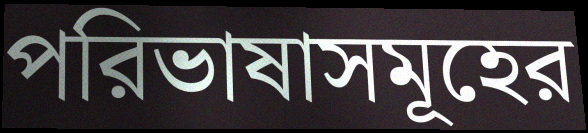
পরিভাষাসমূহের